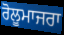
ਰੋਲੂਮਾਜਰਾ